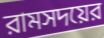
রামসদয়ের